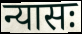
न्यासः